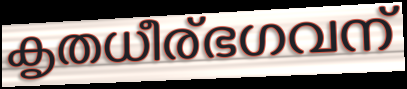
കൃതധീര്ഭഗവന്